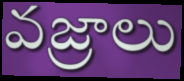
వజ్రాలు